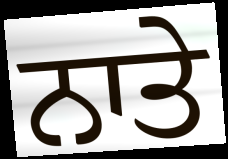
ਨਾਤੇ